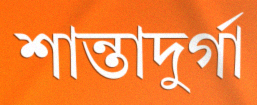
শান্তাদুর্গা